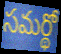
సమర్థో